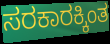
ಸರಕಾರಕ್ಕಿಂತ